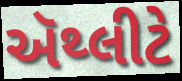
ઍથ્લીટે